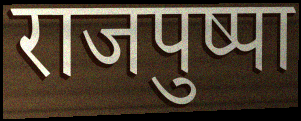
राजपुष्पा